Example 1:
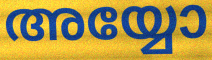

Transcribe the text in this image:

അയ്യോ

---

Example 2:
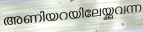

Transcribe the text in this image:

അണിയറയിലേയ്ക്കുവന്ന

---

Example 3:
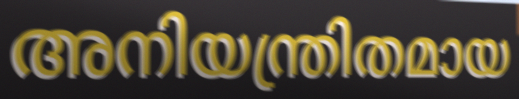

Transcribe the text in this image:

അനിയന്ത്രിതമായ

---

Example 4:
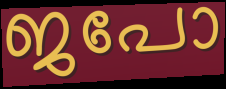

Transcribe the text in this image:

ജപോ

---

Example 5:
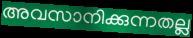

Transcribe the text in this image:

അവസാനിക്കുന്നതല്ല